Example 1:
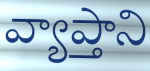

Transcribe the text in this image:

వ్యాప్తాని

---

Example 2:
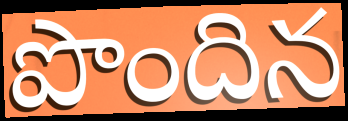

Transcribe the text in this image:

పొందిన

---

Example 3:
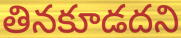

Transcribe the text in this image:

తినకూడదని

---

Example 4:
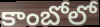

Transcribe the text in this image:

కాంబోలో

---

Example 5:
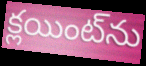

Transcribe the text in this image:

క్లయింట్‌ను